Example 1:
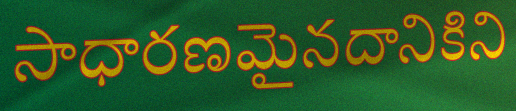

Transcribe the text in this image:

సాధారణమైనదానికిని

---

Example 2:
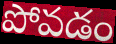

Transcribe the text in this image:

పోవడం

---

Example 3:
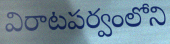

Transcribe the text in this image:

విరాటపర్వంలోని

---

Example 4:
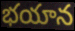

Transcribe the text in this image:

భయాన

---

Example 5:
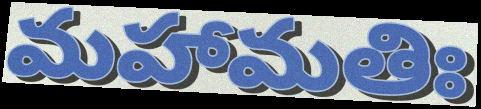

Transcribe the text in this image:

మహామతిః